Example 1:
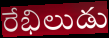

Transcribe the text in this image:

రేభిలుడు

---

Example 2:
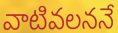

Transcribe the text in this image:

వాటివలననే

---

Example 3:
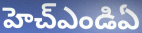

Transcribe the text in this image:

హెచ్ఎండిఏ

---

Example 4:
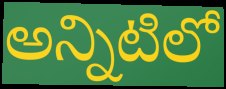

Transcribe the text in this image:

అన్నిటిలో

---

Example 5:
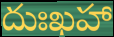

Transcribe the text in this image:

దుఃఖహా